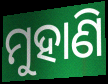
ମୁହାଣି